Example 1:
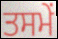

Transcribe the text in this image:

ਤਸਮੇਂ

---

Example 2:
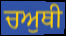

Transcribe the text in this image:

ਚਅੁਥੀ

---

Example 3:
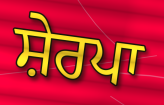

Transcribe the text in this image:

ਸ਼ੇਰਪਾ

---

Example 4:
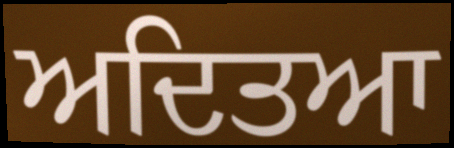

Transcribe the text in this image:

ਅਦਿਤਆ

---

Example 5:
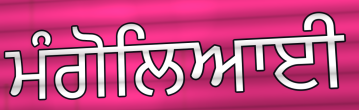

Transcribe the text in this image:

ਮੰਗੋਲਿਆਈ